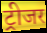
ट्रीजर